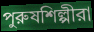
পুরুষশিল্পীরা